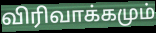
விரிவாக்கமும்